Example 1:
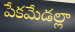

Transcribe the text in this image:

పేకమేడల్లా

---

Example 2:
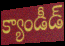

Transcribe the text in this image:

క్యాండీడ్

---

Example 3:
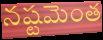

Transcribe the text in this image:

నష్టమెంత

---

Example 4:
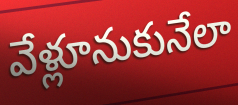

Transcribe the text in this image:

వేళ్లూనుకునేలా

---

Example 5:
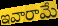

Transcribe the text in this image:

ఇవారామే